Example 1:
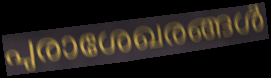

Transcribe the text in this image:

പുരാശേഖരങ്ങൾ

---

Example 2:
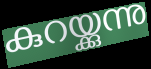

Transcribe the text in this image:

കുറയ്ക്കുന്നു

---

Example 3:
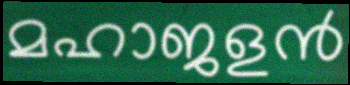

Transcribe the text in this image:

മഹാജളൻ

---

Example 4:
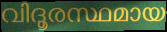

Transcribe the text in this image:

വിദൂരസ്ഥമായ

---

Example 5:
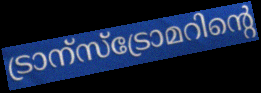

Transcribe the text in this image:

ട്രാന്സ്ട്രോമറിന്റെ